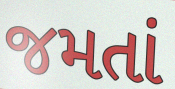
જમતાં